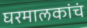
घरमालकांचं